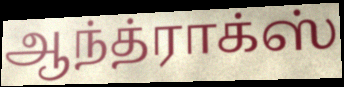
ஆந்த்ராக்ஸ்